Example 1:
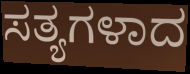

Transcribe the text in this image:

ಸತ್ಯಗಳಾದ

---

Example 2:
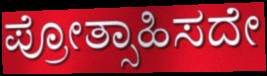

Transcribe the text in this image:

ಪ್ರೋತ್ಸಾಹಿಸದೇ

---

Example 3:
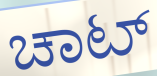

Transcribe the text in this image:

ಚಾಟ್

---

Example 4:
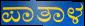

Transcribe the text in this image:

ಪಾತಾಳ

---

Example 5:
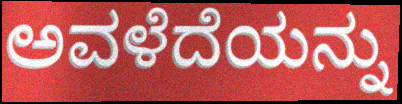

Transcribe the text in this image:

ಅವಳೆದೆಯನ್ನು